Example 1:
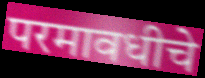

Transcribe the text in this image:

परमावधीचे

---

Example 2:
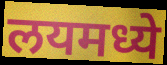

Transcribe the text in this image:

लयमध्ये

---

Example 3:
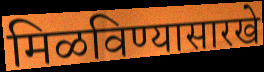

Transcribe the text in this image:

मिळविण्यासारखे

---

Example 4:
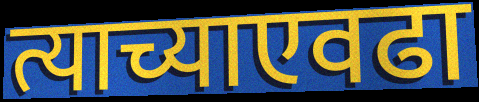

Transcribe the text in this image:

त्याच्याएवढा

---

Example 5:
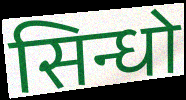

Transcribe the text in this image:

सिन्धो